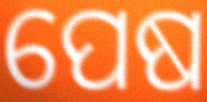
ପେଷ